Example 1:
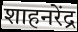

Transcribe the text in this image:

शाहनरेंद्र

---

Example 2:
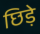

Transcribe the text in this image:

छिड़े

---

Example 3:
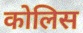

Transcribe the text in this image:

कोलिस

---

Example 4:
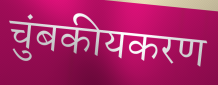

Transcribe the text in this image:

चुंबकीयकरण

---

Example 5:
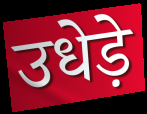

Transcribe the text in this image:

उधेड़े